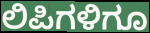
ಲಿಪಿಗಳಿಗೂ